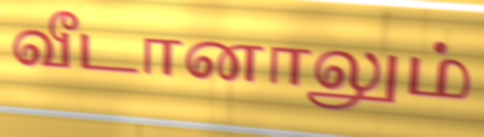
வீடானாலும்